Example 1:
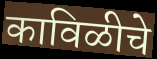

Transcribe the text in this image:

काविळीचे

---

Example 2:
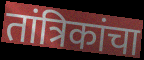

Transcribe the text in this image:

तांत्रिकांचा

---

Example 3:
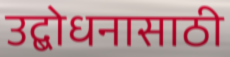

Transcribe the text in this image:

उद्बोधनासाठी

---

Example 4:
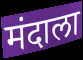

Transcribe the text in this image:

मंदाला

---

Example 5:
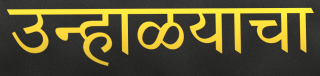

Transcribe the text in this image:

उन्हाळयाचा